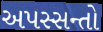
અપસ્સન્તો